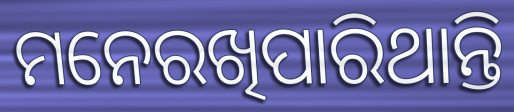
ମନେରଖିପାରିଥାନ୍ତି